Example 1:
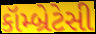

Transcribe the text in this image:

કૉમ્બ્રેટેસી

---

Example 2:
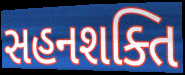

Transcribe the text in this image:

સહનશક્તિ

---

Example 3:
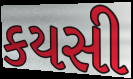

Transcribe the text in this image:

કયસી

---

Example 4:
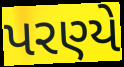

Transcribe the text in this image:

પરણ્યે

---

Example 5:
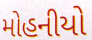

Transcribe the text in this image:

મોહનીયો